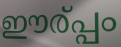
ഈര്പ്പം